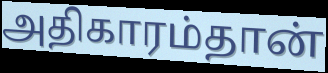
அதிகாரம்தான்